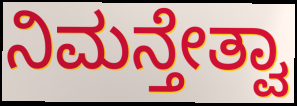
ನಿಮನ್ತೇತ್ವಾ